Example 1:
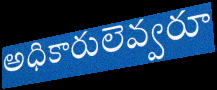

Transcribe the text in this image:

అధికారులెవ్వరూ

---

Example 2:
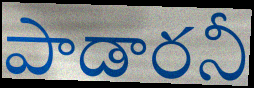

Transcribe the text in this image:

పాడారనీ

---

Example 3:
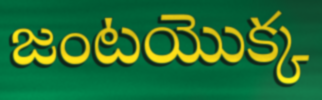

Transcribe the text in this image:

జంటయొక్క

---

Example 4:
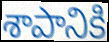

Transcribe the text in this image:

శాపానికి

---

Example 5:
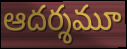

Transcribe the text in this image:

ఆదర్శమూ